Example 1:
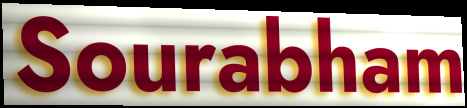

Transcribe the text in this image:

Sourabham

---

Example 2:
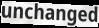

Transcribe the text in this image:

unchanged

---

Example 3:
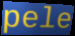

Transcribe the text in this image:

pele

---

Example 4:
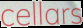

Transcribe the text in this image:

cellars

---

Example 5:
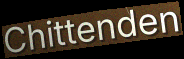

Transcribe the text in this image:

Chittenden